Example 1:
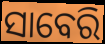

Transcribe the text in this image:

ସାବେରି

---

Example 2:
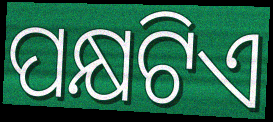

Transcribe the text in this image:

ପକ୍ଷଟିଏ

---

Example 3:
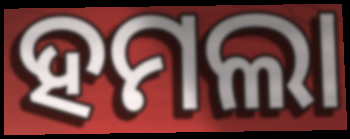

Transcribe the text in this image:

ହମଲା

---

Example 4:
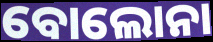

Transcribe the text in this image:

ବୋଲୋନା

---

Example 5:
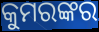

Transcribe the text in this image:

କୁମରଙ୍କର